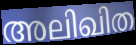
അലിഖിത